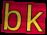
bk